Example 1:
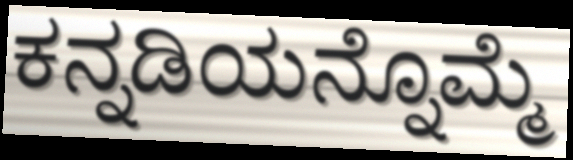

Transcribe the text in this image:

ಕನ್ನಡಿಯನ್ನೊಮ್ಮೆ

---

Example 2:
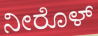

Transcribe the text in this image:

ನೀರೊಳ್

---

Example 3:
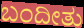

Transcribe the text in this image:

ಬಂದೀತು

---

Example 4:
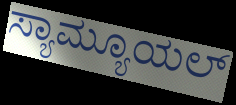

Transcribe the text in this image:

ಸ್ಯಾಮ್ಯೂಯಲ್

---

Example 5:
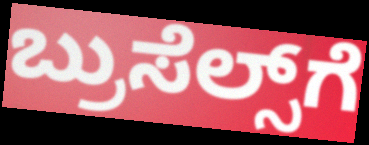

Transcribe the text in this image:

ಬ್ರುಸೆಲ್ಸ್‌ಗೆ